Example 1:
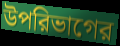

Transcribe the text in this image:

উপরিভাগের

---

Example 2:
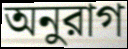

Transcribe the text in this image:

অনুরাগ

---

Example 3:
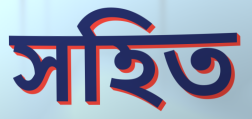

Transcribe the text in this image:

সহিত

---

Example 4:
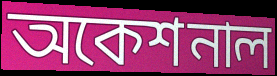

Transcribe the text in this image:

অকেশনাল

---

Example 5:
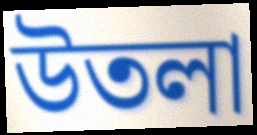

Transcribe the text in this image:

উতলা